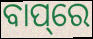
ବାପ୍‌ରେ